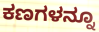
ಕಣಗಳನ್ನೂ